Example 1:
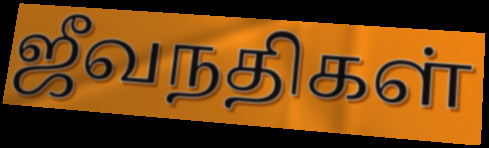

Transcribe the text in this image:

ஜீவநதிகள்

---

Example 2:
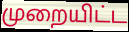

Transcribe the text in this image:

முறையிட்ட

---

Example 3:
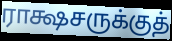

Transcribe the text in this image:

ராக்ஷசருக்குத்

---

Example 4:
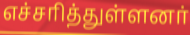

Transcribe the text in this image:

எச்சரித்துள்ளனர்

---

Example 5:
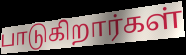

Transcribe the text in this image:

பாடுகிறார்கள்